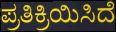
ಪ್ರತಿಕ್ರಿಯಿಸಿದೆ